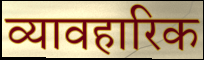
व्यावहारिक